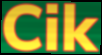
Cik